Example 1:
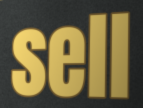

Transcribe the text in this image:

sell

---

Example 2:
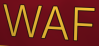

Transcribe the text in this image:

WAF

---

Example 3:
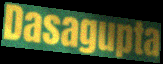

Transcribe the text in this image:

Dasagupta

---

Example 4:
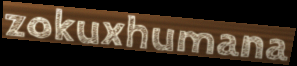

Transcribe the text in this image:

zokuxhumana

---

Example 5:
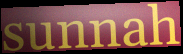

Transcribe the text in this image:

sunnah